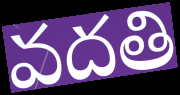
వదతి